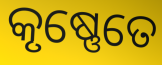
କୃଷ୍ଣେତେ